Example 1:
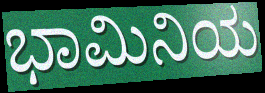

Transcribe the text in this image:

ಭಾಮಿನಿಯ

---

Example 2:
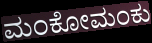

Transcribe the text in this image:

ಮಂಕೋಮಂಕು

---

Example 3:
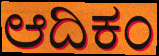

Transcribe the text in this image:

ಆದಿಕಂ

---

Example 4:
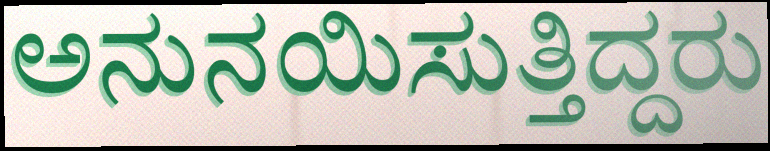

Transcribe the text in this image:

ಅನುನಯಿಸುತ್ತಿದ್ದರು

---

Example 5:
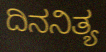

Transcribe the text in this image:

ದಿನನಿತ್ಯ